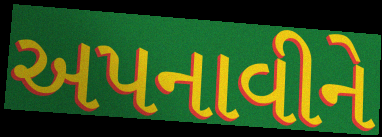
અપનાવીને